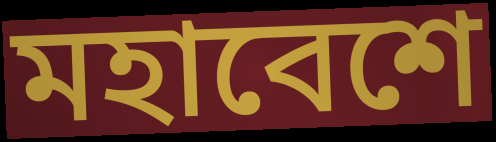
মহাবেশে